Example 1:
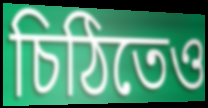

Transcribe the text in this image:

চিঠিতেও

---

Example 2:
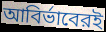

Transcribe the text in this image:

আবির্ভাবেরই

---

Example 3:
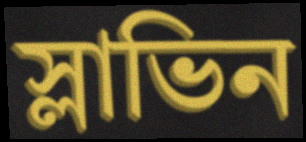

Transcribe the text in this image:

স্লাভিন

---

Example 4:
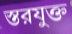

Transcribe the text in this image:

স্তরযুক্ত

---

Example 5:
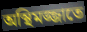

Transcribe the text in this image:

অস্থিমজ্জাতে